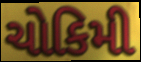
ચોકિમી